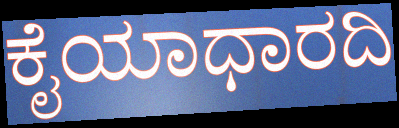
ಕೈಯಾಧಾರದಿ